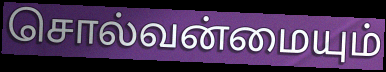
சொல்வன்மையும்